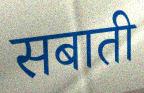
सबाती